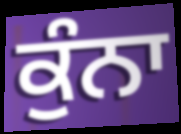
ਕੁੰਨਾ